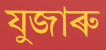
যুজাৰু